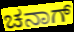
ಚನಾಗ್